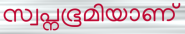
സ്വപ്നഭൂമിയാണ്